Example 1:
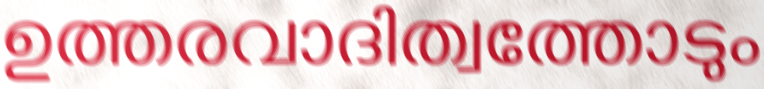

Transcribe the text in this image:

ഉത്തരവാദിത്വത്തോടും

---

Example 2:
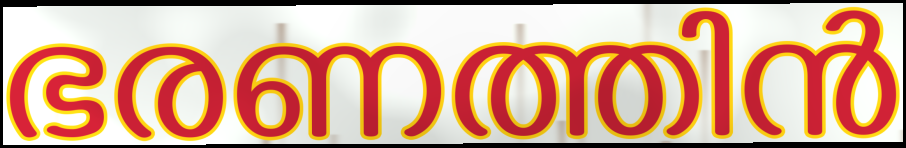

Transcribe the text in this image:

ഭരണത്തിൻ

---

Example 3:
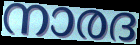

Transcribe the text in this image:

നാരദ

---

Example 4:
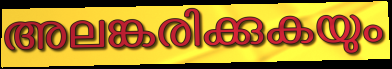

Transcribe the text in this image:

അലങ്കരിക്കുകയും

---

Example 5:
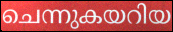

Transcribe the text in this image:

ചെന്നുകയറിയ